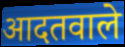
आदतवाले